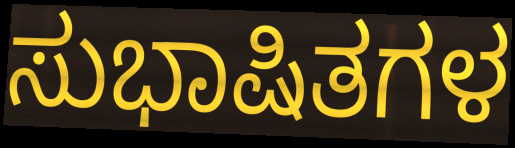
ಸುಭಾಷಿತಗಳ